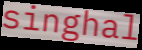
singhal